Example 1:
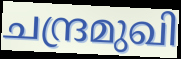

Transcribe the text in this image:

ചന്ദ്രമുഖി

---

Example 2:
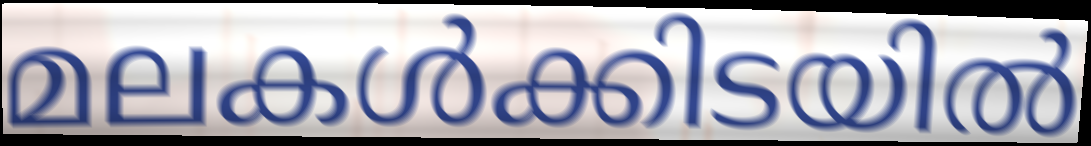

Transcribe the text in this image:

മലകൾക്കിടയിൽ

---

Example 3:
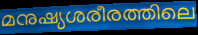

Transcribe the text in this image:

മനുഷ്യശരീരത്തിലെ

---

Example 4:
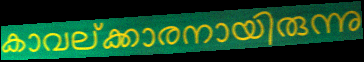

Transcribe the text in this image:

കാവല്ക്കാരനായിരുന്നു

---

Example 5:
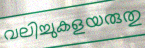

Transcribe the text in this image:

വലിച്ചുകളയരുതു